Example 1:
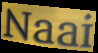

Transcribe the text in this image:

Naai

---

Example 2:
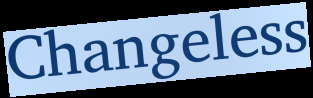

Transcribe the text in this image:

Changeless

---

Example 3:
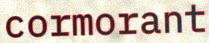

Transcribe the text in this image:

cormorant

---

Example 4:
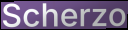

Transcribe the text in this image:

Scherzo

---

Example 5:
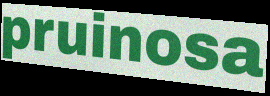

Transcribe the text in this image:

pruinosa